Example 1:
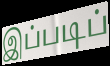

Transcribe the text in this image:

இப்படிப்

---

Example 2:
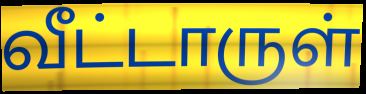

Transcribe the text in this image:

வீட்டாருள்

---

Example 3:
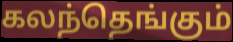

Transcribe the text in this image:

கலந்தெங்கும்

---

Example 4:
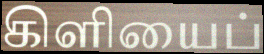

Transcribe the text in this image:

கிளியைப்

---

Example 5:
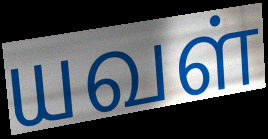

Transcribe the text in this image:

யவள்